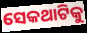
ସେକଥାଟିକୁ